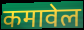
कमावेल